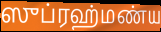
ஸுப்ரஹ்மண்ய